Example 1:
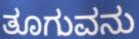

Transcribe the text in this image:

ತೂಗುವನು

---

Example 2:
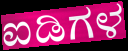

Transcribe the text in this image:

ಐಡಿಗಳ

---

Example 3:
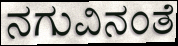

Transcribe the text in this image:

ನಗುವಿನಂತೆ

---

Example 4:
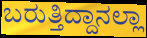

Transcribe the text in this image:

ಬರುತ್ತಿದ್ದಾನಲ್ಲಾ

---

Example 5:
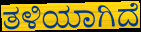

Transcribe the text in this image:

ತಳಿಯಾಗಿದೆ